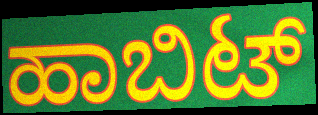
ಹಾಬಿಟ್